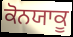
ਕੋਨਯਾਕੂ